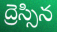
ద్రెస్సిన